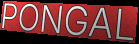
PONGAL